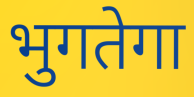
भुगतेगा